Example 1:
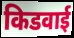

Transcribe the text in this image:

किडवाई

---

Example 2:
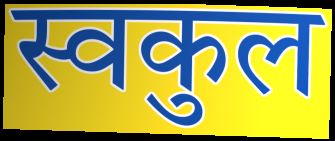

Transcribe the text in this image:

स्वकुल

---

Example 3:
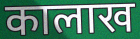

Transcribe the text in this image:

कालाख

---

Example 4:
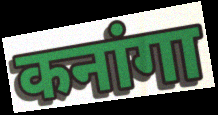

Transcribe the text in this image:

कनांगा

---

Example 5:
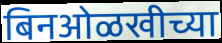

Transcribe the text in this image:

बिनओळखीच्या